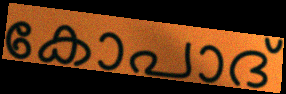
കോപാദ്